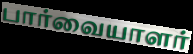
பார்வையாளர்